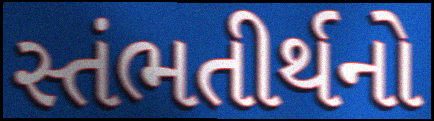
સ્તંભતીર્થનો